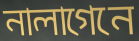
নালাগেনে